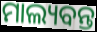
ମାଲ୍ୟବନ୍ତ